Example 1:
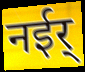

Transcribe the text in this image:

नईर्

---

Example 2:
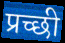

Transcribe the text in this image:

प्रच्छी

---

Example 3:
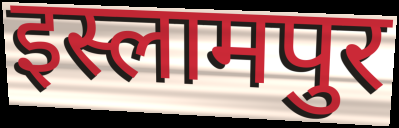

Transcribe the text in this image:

इस्लामपुर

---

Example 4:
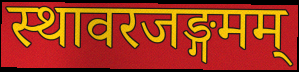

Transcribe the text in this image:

स्थावरजङ्गमम्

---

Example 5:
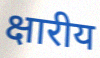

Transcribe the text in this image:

क्षारीय